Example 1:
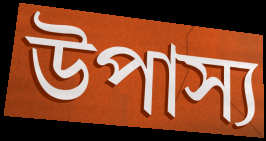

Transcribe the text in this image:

উপাস্য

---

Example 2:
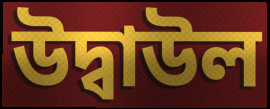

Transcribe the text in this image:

উদ্বাউল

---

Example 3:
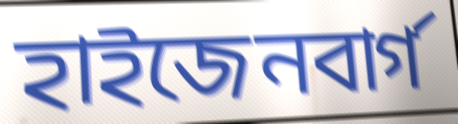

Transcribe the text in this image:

হাইজেনবাৰ্গ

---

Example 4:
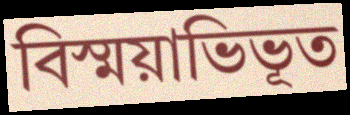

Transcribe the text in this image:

বিস্ময়াভিভূত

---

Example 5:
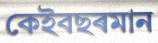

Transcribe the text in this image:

কেইবছৰমান